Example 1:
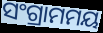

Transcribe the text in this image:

ସଂଗ୍ରାମମୟ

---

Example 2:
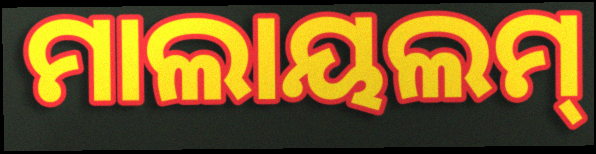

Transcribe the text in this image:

ମାଲାୟଲମ୍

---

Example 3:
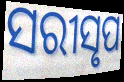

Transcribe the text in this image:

ସରୀସୃପ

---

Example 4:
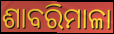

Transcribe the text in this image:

ଶାବରିମାଳା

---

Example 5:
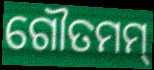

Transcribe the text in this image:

ଗୌତମମ୍